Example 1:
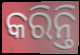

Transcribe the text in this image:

କରିନ୍ତି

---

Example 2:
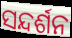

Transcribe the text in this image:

ସନ୍ଦର୍ଶନ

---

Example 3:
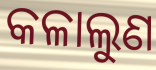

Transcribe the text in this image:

କଳାଲୁଣ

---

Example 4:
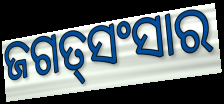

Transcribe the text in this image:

ଜଗତ୍‌ସଂସାର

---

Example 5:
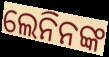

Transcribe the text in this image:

ଲେନିନଙ୍କ